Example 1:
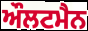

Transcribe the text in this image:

ਔਲਟਮੈਨ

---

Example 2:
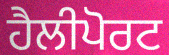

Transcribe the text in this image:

ਹੈਲੀਪੋਰਟ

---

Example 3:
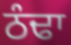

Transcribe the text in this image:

ਠੰਢਾ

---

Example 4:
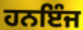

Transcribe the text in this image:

ਹਨਇੰਜ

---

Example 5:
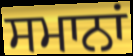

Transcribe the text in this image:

ਸਮਾਨਾਂ